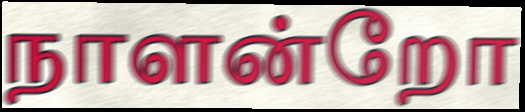
நாளன்றோ